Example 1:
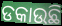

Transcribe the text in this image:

ଡକାଉଛି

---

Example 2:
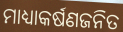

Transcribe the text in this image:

ମାଧ୍ୟାକର୍ଷଣଜନିତ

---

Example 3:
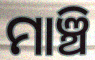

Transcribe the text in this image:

ମାଞ୍ଚି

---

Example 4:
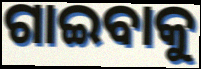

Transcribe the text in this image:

ଗାଇବାକୁ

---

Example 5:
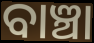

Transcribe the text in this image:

ବାଞ୍ଚା